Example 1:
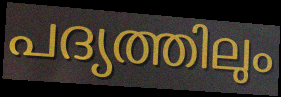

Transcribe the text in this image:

പദ്യത്തിലും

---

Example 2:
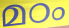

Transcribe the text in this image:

മഠം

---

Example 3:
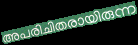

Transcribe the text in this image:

അപരിചിതരായിരുന്ന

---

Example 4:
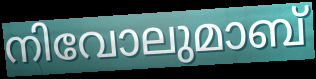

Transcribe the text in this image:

നിവോലുമാബ്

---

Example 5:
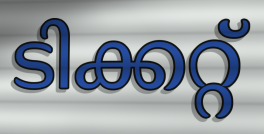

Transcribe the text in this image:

ടിക്കറ്റ്